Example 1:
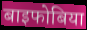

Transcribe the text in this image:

बाइफोबिया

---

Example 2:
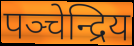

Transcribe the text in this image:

पञ्चेन्द्रिय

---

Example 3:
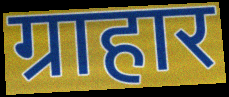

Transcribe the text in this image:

ग्राहार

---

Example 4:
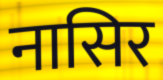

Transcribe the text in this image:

नासिर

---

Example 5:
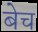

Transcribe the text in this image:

बेच